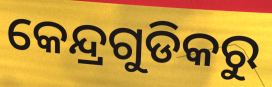
କେନ୍ଦ୍ରଗୁଡିକରୁ